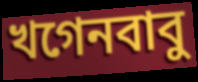
খগেনবাবু